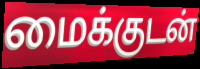
மைக்குடன்